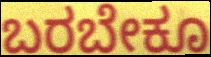
ಬರಬೇಕೂ